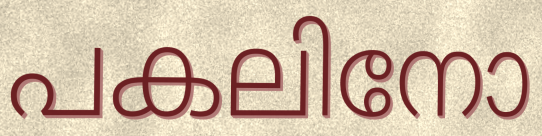
പകലിനോ